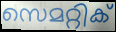
സെമറ്റിക്